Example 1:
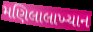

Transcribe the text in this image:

મણિલાલાખ્યાન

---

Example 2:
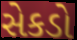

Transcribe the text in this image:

સેકડો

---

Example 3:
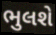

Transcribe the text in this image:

ભુલશે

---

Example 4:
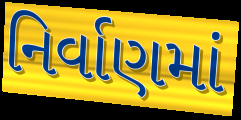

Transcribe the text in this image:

નિર્વાણમાં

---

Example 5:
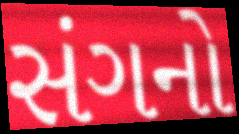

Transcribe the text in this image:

સંગનો